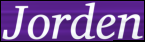
Jorden